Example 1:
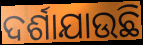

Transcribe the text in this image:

ଦର୍ଶାଯାଉଛି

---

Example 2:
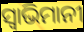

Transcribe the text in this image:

ସ୍ବାଭିମାନୀ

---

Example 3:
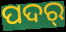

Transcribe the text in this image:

ପଦର୍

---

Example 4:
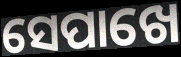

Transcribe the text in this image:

ସେପାଖେ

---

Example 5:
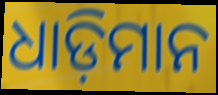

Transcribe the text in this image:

ଧାଡ଼ିମାନ